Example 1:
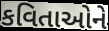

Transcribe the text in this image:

કવિતાઓને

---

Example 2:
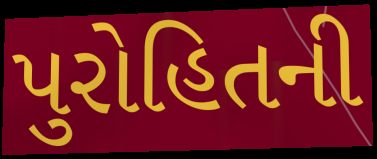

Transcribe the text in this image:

પુરોહિતની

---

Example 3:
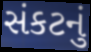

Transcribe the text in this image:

સંકટનું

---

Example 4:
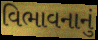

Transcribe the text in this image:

વિભાવનાનું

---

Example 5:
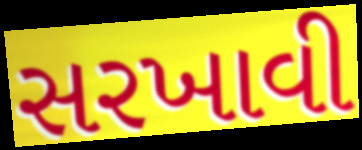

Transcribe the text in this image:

સરખાવી